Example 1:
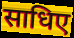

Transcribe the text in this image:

साधिए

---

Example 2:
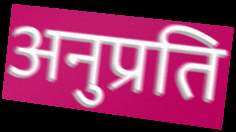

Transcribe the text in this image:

अनुप्रति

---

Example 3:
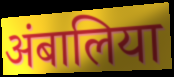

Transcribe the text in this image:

अंबालिया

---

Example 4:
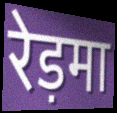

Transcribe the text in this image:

रेड़मा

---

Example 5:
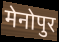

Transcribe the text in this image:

मेनोपुर